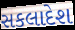
સકલાદેશ